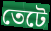
তেটে